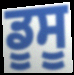
ਡੂਸੂ